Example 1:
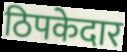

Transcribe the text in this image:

ठिपकेदार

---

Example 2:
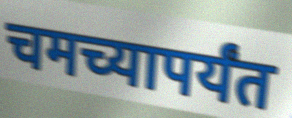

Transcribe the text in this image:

चमच्यापर्यंत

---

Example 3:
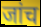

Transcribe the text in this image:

जांच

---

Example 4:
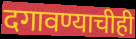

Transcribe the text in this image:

दगावण्याचीही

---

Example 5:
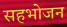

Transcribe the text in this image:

सहभोजन